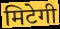
मिटेगी